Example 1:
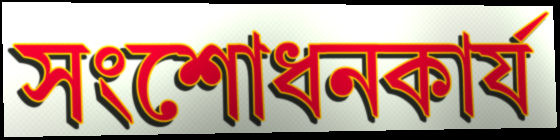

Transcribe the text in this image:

সংশোধনকার্য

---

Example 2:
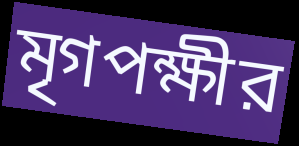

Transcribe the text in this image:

মৃগপক্ষীর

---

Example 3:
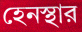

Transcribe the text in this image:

হেনস্থার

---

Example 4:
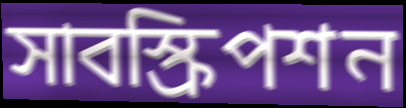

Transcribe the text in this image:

সাবস্ক্রিপশন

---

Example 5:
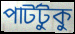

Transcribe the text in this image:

পার্টটুকু